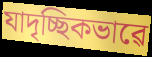
যাদৃচ্ছিকভাৱে